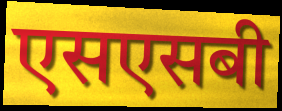
एसएसबी